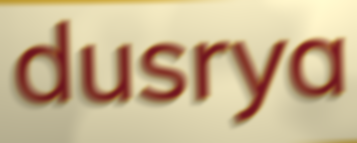
dusrya